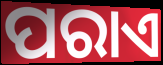
ପରାଏ